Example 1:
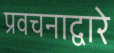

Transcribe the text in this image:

प्रवचनाद्वारे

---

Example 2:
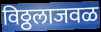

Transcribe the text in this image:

विठ्ठलाजवळ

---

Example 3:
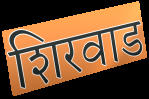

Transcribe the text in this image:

शिरवाड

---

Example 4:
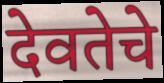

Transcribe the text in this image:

देवतेचे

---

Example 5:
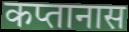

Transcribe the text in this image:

कप्तानास